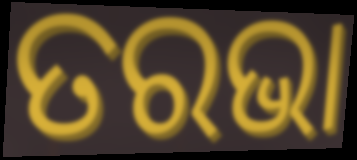
ତରଭା